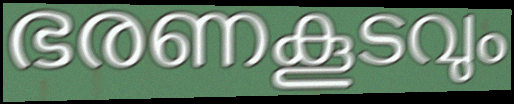
ഭരണകൂടവും